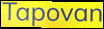
Tapovan